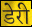
डेरी